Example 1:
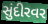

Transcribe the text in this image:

સુંદીરવર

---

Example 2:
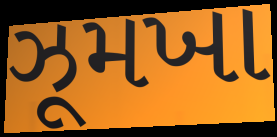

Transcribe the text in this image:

ઝૂમખા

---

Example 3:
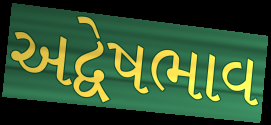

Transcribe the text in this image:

અદ્વેષભાવ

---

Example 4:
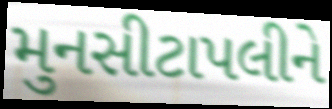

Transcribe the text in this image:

મુનસીટાપલીને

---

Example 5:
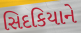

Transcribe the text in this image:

સિદકિયાને